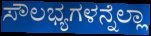
ಸೌಲಭ್ಯಗಳನ್ನೆಲ್ಲಾ